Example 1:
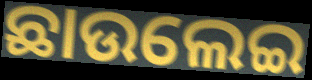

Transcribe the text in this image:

ଛାଉଲେଇ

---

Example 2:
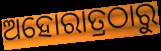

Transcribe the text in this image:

ଅହୋରାତ୍ରଠାରୁ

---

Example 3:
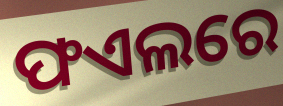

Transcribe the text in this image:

ଫଏଲରେ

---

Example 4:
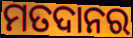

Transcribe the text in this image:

ମତଦାନର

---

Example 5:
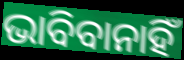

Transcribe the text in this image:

ଭାବିବାନାହିଁ